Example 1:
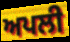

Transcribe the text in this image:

ਅਪਲੀ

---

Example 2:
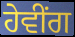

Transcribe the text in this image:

ਹੇਵੀੰਗ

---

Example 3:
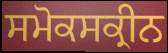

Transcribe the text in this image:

ਸਮੋਕਸਕ੍ਰੀਨ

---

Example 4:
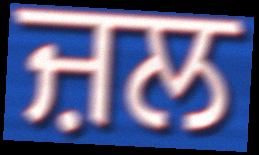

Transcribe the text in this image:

ਜ਼ਲ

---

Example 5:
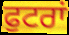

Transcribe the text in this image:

ਫੁਟਰਾਂ